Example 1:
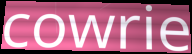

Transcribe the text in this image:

cowrie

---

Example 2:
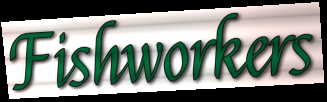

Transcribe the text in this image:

Fishworkers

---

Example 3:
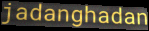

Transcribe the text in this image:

jadanghadan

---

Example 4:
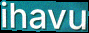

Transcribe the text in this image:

ihavu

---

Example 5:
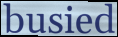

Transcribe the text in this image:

busied